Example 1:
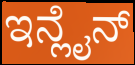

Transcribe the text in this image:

ಇನ್ಲೈನ್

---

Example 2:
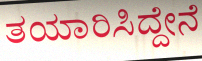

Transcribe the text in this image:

ತಯಾರಿಸಿದ್ದೇನೆ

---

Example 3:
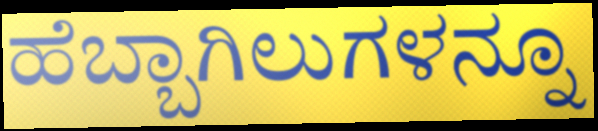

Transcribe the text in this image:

ಹೆಬ್ಬಾಗಿಲುಗಳನ್ನೂ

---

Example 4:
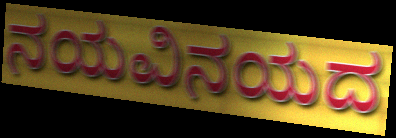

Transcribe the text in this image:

ನಯವಿನಯದ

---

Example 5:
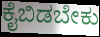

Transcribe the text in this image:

ಕೈಬಿಡಬೇಕು